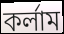
কর্লাম